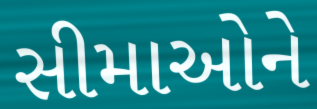
સીમાઓને